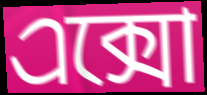
এক্সো